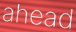
ahead